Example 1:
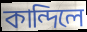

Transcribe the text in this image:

কান্দিলে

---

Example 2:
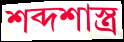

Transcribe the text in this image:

শব্দশাস্ত্র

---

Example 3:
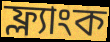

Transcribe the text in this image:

ফ্ল্যাংক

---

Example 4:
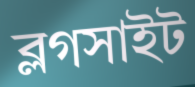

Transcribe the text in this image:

ব্লগসাইট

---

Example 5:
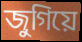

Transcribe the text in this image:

জুগিয়ে